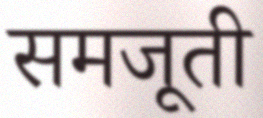
समजूती